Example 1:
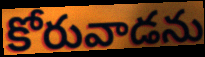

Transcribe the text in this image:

కోరువాడను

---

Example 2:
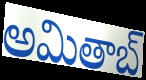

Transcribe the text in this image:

అమితాబ్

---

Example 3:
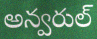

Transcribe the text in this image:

అన్వరుల్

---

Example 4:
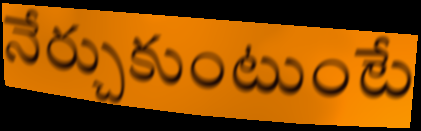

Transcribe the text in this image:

నేర్చుకుంటుంటే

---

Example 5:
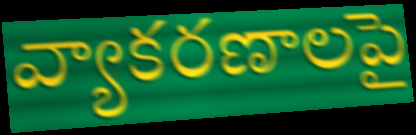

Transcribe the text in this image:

వ్యాకరణాలపై